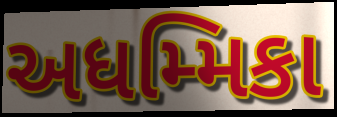
અધમ્મિકા